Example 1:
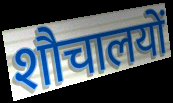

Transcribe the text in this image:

शौचालयों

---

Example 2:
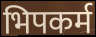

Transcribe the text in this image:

भिपकर्म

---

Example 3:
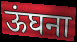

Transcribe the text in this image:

ऊंघना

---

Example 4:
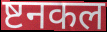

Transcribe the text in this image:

ष्टनकल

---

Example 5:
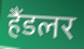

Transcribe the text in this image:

हैंडलर